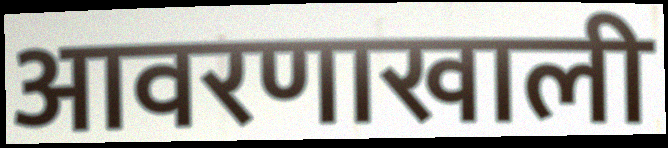
आवरणाखाली